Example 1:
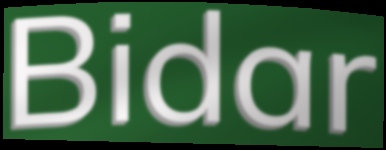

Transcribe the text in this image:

Bidar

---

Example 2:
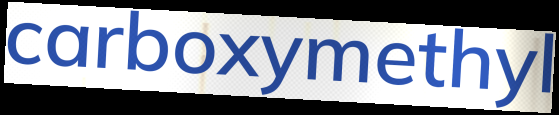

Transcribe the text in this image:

carboxymethyl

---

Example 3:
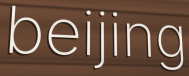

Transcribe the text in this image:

beijing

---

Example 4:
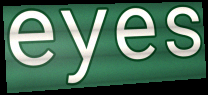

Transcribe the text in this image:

eyes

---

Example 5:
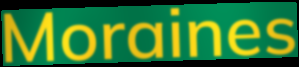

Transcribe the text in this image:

Moraines